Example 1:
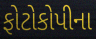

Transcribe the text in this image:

ફોટોકોપીના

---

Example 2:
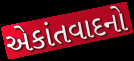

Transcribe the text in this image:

એકાંતવાદનો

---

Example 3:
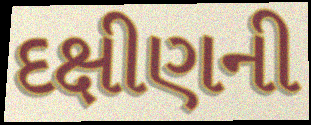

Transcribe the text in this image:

દક્ષીણની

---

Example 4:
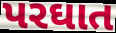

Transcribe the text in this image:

પરઘાત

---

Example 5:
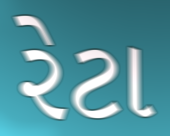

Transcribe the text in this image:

રેટા